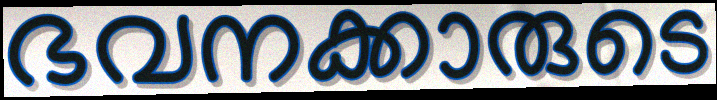
ഭവനക്കാരുടെ